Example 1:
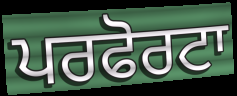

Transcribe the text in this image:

ਪਰਫੋਰਟਾ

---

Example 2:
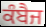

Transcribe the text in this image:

ਕੰਬੈਜ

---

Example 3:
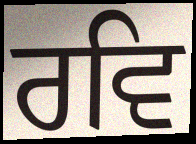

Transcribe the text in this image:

ਰਵਿ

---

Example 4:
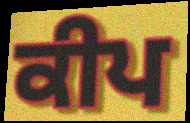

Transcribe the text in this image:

ਕੀਪ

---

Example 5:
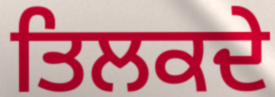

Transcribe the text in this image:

ਤਿਲਕਦੇ